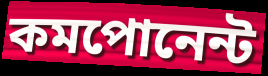
কমপোনেন্ট